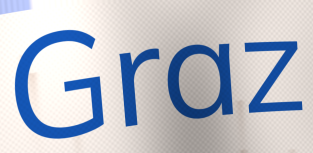
Graz